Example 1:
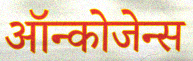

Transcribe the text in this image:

ऑन्कोजेन्स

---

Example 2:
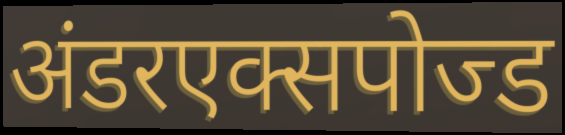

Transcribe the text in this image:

अंडरएक्सपोज्ड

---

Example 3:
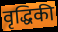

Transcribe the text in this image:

वृद्धिकी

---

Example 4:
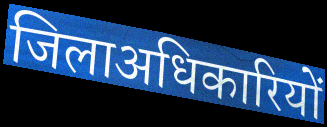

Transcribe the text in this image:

जिलाअधिकारियों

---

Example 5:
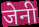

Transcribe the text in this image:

जेनी